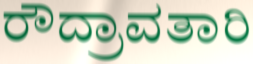
ರೌದ್ರಾವತಾರಿ